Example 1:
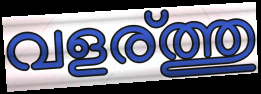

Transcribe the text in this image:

വളര്ത്തു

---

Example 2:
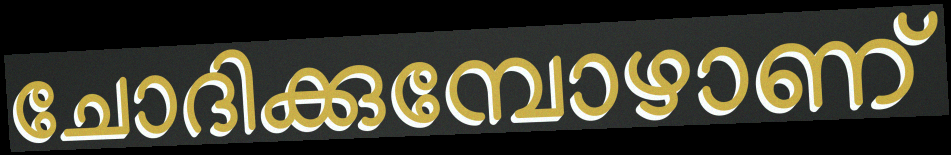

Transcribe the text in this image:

ചോദിക്കുമ്പോഴാണ്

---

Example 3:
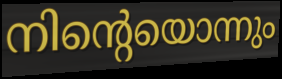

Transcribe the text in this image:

നിന്റെയൊന്നും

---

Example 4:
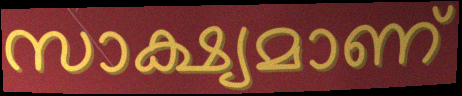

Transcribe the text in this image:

സാക്ഷ്യമാണ്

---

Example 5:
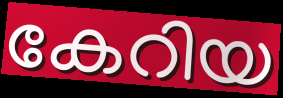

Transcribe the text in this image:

കേറിയ